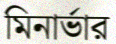
মিনার্ভার